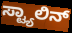
ಸ್ಟ್ಯಾಲಿನ್